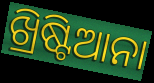
ଖ୍ରିଷ୍ଟିଆନା